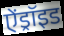
ऐंड्रॉइड